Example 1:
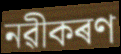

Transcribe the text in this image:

নৱীকৰণ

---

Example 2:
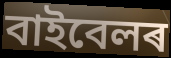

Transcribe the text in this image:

বাইবেলৰ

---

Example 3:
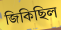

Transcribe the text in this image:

জিকিছিল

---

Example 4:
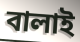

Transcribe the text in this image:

বালাই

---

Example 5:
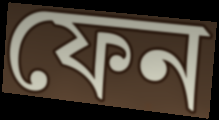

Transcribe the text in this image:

ফেন